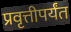
प्रवृत्तीपर्यंत